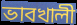
ভাবখালী